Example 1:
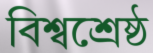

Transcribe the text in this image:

বিশ্বশ্ৰেষ্ঠ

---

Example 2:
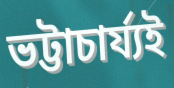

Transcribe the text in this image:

ভট্টাচাৰ্য্যই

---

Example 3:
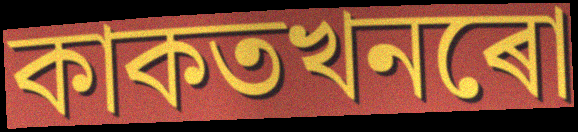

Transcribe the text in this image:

কাকতখনৰো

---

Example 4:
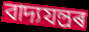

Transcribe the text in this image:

বাদ্যযন্ত্ৰৰ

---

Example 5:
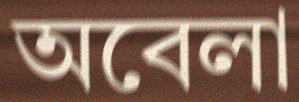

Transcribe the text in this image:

অবেলা